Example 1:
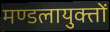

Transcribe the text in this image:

मण्डलायुक्तों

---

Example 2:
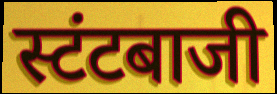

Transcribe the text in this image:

स्टंटबाजी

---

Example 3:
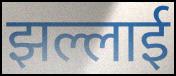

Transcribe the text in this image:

झल्लाई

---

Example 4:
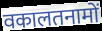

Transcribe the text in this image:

वकालतनामों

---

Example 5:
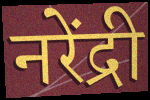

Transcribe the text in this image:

नरेंद्री